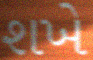
શખે